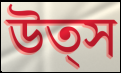
উত্স